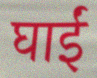
घाईं